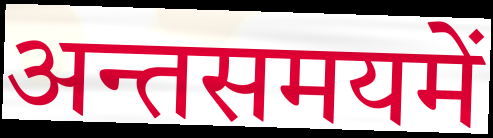
अन्तसमयमें